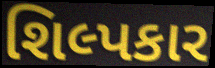
શિલ્પકાર